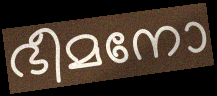
ഭീമനോ